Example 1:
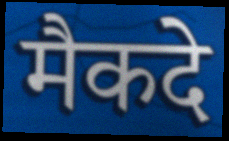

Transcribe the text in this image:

मैकदे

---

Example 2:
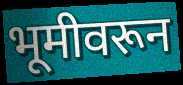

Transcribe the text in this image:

भूमीवरून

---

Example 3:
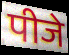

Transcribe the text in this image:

पीजे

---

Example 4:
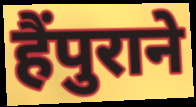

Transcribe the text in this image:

हैंपुराने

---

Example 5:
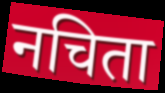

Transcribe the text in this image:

नचिता